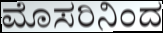
ಮೊಸರಿನಿಂದ